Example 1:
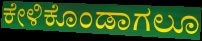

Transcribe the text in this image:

ಕೇಳಿಕೊಂಡಾಗಲೂ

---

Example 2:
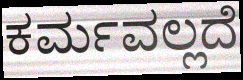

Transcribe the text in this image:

ಕರ್ಮವಲ್ಲದೆ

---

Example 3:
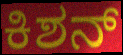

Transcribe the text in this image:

ಕಿಶನ್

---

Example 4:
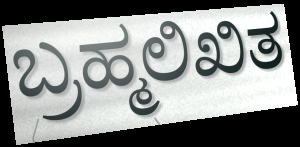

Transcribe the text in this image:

ಬ್ರಹ್ಮಲಿಖಿತ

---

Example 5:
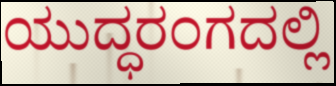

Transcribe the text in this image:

ಯುದ್ಧರಂಗದಲ್ಲಿ